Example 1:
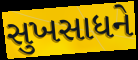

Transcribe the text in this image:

સુખસાધને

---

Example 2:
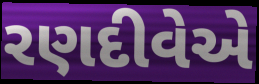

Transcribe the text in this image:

રણદીવેએ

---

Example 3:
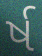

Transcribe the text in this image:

ર્ષ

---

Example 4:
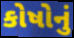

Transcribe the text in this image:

કોષોનું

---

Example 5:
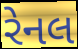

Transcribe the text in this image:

રેનલ